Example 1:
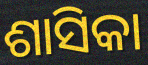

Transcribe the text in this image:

ଶାସିକା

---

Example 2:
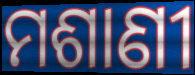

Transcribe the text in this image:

ମଶାଣୀ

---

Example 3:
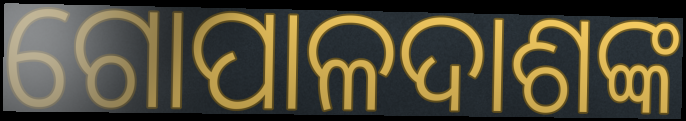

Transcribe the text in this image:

ଗୋପାଳଦାଶଙ୍କ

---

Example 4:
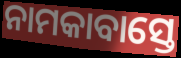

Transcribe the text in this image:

ନାମକାବାସ୍ତେ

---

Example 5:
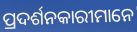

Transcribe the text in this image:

ପ୍ରଦର୍ଶନକାରୀମାନେ